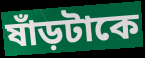
ষাঁড়টাকে